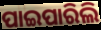
ପାଇପାରିଲି